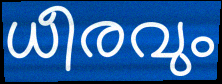
ധീരവും